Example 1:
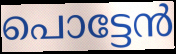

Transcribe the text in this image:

പൊട്ടേൻ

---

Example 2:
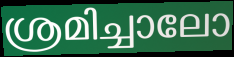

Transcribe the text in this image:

ശ്രമിച്ചാലോ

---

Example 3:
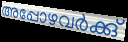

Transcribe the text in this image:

അപ്പോഴവർക്കു്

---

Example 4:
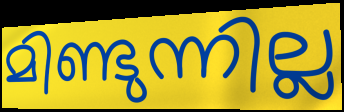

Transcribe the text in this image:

മിണ്ടുന്നില്ല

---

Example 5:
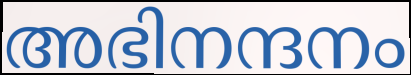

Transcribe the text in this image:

അഭിനന്ദനം